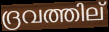
ദ്രവത്തില്